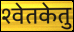
श्वेतकेतु